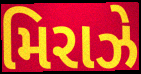
મિરાઝે